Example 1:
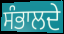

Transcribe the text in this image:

ਸੰਭਾਲਦੇ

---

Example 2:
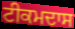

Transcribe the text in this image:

ਟੀਕਮਦਾਸ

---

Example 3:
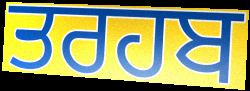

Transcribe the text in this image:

ਤਰਹਬ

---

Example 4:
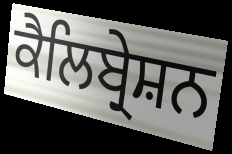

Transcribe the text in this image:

ਕੈਲਿਬ੍ਰੇਸ਼ਨ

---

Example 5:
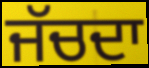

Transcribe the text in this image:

ਜੱਚਦਾ